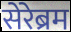
सेरेब्रम